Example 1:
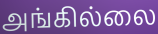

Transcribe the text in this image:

அங்கில்லை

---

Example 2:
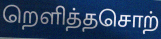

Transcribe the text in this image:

றெளித்தசொற்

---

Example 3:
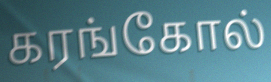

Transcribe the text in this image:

கரங்கோல்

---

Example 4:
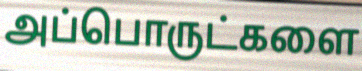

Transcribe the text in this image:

அப்பொருட்களை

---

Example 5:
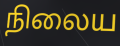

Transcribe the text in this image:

நிலைய